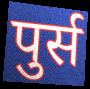
पुर्स